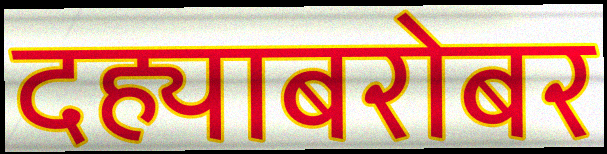
दह्याबरोबर